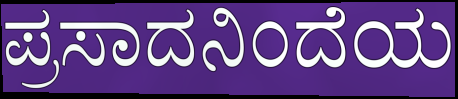
ಪ್ರಸಾದನಿಂದೆಯ